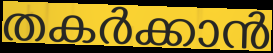
തകർക്കാൻ